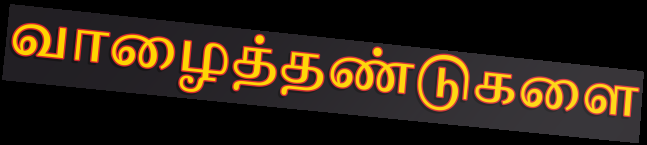
வாழைத்தண்டுகளை